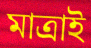
মাত্ৰাই